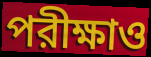
পরীক্ষাও